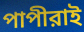
পাপীরাই